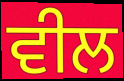
ਵੀਲ